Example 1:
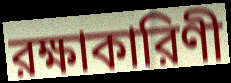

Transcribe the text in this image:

রক্ষাকারিণী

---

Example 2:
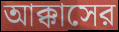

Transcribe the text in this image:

আক্কাসের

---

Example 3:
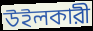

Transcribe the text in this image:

উইলকারী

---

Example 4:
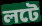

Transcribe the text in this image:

লটে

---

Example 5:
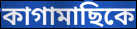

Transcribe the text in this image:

কাগামাছিকে